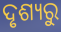
ଦୃଶ୍ୟରୁ